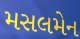
મસલમેન